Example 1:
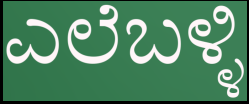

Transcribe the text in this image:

ಎಲೆಬಳ್ಳಿ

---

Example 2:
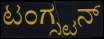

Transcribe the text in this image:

ಟಂಗ್ಸ್ಟನ್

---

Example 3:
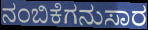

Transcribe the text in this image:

ನಂಬಿಕೆಗನುಸಾರ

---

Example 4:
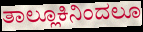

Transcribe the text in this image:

ತಾಲ್ಲೂಕಿನಿಂದಲೂ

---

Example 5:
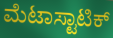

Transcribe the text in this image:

ಮೆಟಾಸ್ಟಾಟಿಕ್